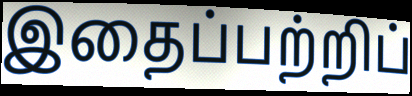
இதைப்பற்றிப்